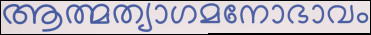
ആത്മത്യാഗമനോഭാവം